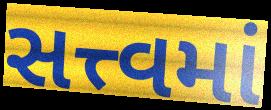
સત્ત્વમાં